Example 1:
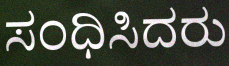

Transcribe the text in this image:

ಸಂಧಿಸಿದರು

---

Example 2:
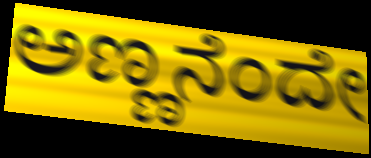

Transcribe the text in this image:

ಅಣ್ಣನೆಂದೇ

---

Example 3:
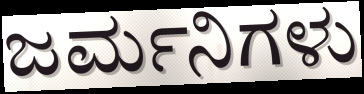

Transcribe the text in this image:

ಜರ್ಮನಿಗಳು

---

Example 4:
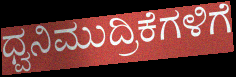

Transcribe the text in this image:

ಧ್ವನಿಮುದ್ರಿಕೆಗಳಿಗೆ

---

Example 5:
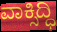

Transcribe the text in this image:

ವಾಕ್ಸಿದ್ಧಿ